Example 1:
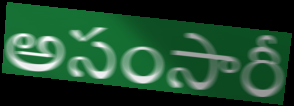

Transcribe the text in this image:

అసంసారీ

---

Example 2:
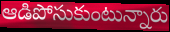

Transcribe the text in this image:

ఆడిపోసుకుంటున్నారు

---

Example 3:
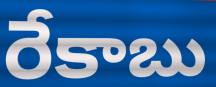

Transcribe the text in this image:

రేకాబు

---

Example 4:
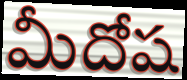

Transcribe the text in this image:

మీదోష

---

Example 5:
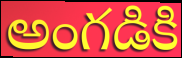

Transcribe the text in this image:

అంగడికి